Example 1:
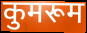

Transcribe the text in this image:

कुमरूम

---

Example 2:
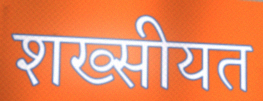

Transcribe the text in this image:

शख्सीयत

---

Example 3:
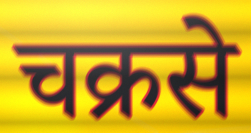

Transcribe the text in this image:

चक्रसे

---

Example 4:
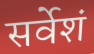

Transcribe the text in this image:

सर्वेशं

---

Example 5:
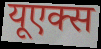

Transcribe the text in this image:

यूएक्स